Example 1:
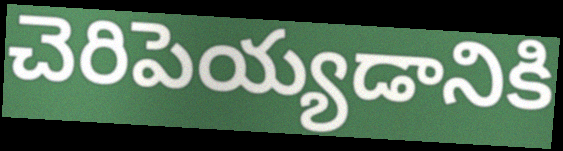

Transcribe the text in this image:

చెరిపెయ్యడానికి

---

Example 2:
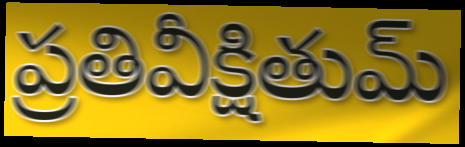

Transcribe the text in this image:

ప్రతివీక్షితుమ్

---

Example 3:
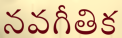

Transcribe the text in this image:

నవగీతిక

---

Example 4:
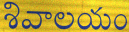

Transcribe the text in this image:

శివాలయం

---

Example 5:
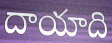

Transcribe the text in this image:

దాయాది